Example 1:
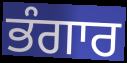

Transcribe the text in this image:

ਭੰਗਾਰ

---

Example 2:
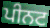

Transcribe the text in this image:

ਪੀਨਟ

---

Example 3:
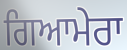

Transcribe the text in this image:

ਗਿਆਮੇਰਾ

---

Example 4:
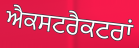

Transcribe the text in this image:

ਐਕਸਟਰੈਕਟਰਾਂ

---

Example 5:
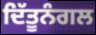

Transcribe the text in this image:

ਦਿੱਤੂਨੰਗਲ